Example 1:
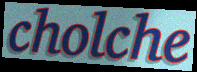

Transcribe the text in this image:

cholche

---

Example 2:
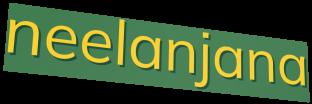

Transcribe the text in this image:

neelanjana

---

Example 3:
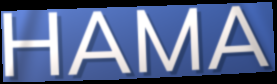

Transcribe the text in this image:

HAMA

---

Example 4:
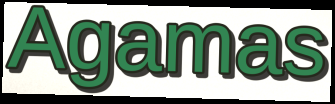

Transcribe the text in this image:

Agamas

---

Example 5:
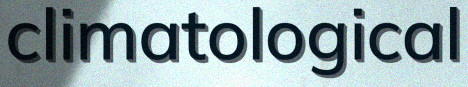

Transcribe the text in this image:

climatological